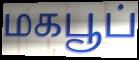
மகபூப்